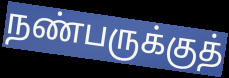
நண்பருக்குத்